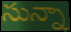
సున్నా